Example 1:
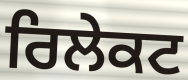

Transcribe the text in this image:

ਰਿਲੇਕਟ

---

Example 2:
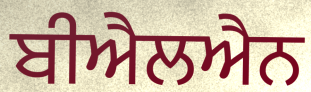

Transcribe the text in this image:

ਬੀਐਲਐਨ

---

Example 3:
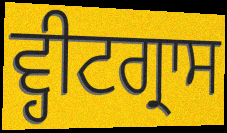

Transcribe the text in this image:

ਵ੍ਹੀਟਗ੍ਰਾਸ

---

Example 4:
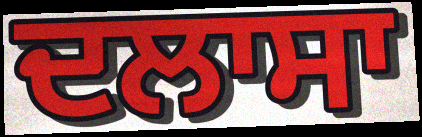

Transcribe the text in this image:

ਦਲਾਸਾ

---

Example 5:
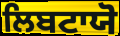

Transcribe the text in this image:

ਲਿਬਟਾਯੋ